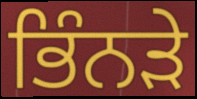
ਭਿੰਨੜੇ